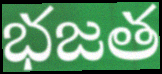
భజత